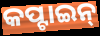
କପ୍ଟାଇନ୍